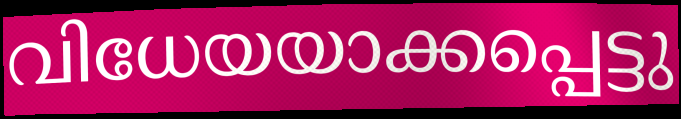
വിധേയയാക്കപ്പെട്ടു